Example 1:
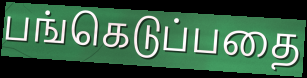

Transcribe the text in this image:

பங்கெடுப்பதை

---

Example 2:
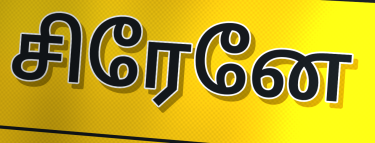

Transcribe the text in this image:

சிரேனே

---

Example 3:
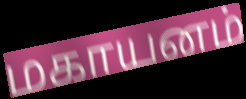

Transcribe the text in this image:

மகாயனம்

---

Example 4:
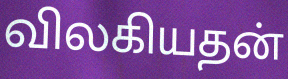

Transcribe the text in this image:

விலகியதன்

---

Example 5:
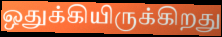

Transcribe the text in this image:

ஒதுக்கியிருக்கிறது